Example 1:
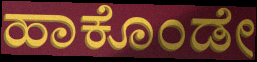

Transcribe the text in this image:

ಹಾಕೊಂಡೇ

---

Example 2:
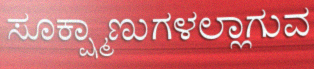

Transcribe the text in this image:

ಸೂಕ್ಷ್ಮಾಣುಗಳಲ್ಲಾಗುವ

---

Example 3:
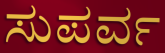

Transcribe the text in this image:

ಸುಪರ್ವ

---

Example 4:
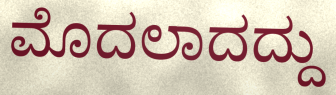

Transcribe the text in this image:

ಮೊದಲಾದದ್ದು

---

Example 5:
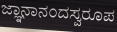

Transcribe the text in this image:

ಜ್ಞಾನಾನಂದಸ್ವರೂಪ